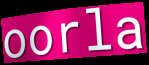
oorla